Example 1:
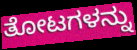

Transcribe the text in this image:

ತೋಟಗಳನ್ನು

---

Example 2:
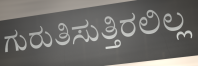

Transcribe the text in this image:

ಗುರುತಿಸುತ್ತಿರಲಿಲ್ಲ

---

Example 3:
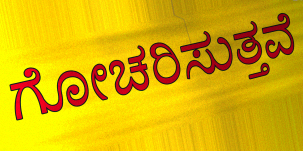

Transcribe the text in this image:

ಗೋಚರಿಸುತ್ತವೆ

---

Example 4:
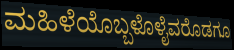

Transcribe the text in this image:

ಮಹಿಳೆಯೊಬ್ಬಳೊಳೈವರೊಡಗೂ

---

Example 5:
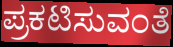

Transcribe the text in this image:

ಪ್ರಕಟಿಸುವಂತೆ